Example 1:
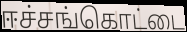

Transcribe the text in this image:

ஈச்சங்கொட்டை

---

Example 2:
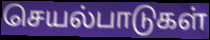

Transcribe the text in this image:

செயல்பாடுகள்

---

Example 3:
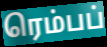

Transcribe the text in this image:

ரெம்பப்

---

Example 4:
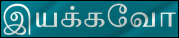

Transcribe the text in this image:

இயக்கவோ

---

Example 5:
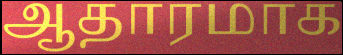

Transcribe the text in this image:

ஆதாரமாக